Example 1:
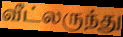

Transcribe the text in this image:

வீட்லருந்து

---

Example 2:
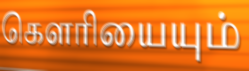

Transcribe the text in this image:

கௌரியையும்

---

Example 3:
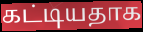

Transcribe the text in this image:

கட்டியதாக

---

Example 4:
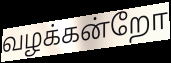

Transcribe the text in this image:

வழக்கன்றோ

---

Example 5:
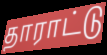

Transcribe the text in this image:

தாராட்டு